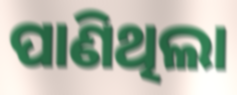
ପାଣିଥିଲା